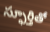
స్ఫూర్తితో